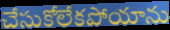
చేసుకోలేకపోయాను